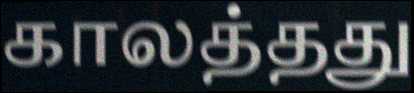
காலத்தது